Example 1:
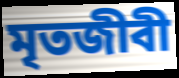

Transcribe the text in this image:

মৃতজীবী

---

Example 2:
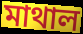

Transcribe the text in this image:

মাথাল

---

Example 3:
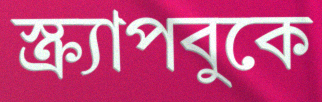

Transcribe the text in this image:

স্ক্র্যাপবুকে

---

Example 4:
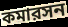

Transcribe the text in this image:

কমারসন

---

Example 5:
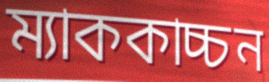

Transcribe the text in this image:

ম্যাককাচ্চন